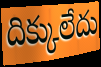
దిక్కులేదు